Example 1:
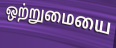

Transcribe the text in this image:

ஒற்றுமையை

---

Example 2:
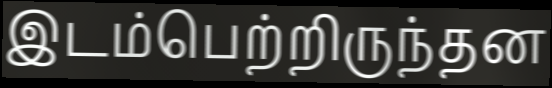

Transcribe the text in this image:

இடம்பெற்றிருந்தன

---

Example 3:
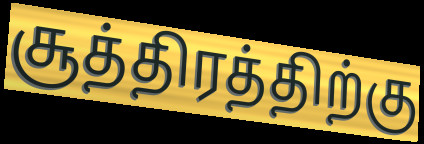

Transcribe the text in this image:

சூத்திரத்திற்கு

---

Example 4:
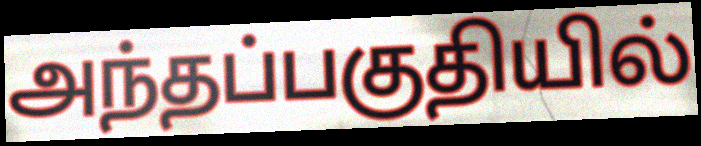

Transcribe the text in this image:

அந்தப்பகுதியில்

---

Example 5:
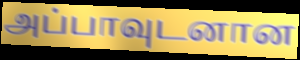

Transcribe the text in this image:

அப்பாவுடனான